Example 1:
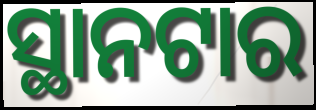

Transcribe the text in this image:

ସ୍ଥାନଟାର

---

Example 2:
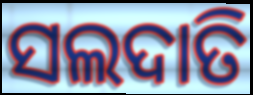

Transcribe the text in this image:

ସଲଦାତି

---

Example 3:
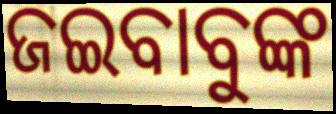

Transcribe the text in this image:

ଜଇବାବୁଙ୍କ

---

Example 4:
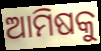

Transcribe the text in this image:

ଆମିଷକୁ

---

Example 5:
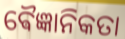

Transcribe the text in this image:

ଵୈଜ୍ଞାନିକତା